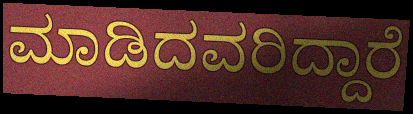
ಮಾಡಿದವರಿದ್ದಾರೆ